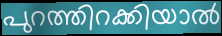
പുറത്തിറക്കിയാൽ